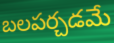
బలపర్చడమే